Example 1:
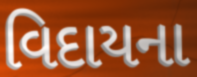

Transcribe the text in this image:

વિદાયના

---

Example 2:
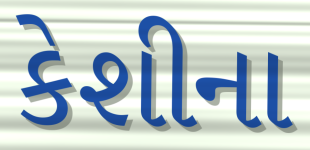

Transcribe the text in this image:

કેશીના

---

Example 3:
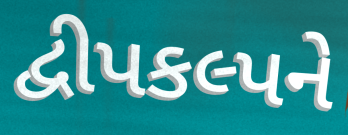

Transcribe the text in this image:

દ્વીપકલ્પને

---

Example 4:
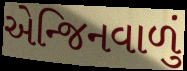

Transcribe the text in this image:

એન્જિનવાળું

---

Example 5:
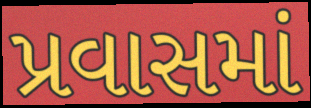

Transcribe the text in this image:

પ્રવાસમાં